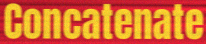
Concatenate